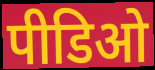
पीडिओ